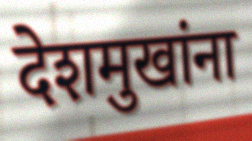
देशमुखांना